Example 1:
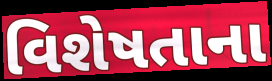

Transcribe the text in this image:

વિશેષતાના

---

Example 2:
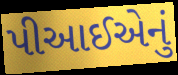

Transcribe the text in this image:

પીઆઈએનું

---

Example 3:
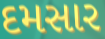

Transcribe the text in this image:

દમસાર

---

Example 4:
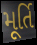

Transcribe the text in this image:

મૂર્તિ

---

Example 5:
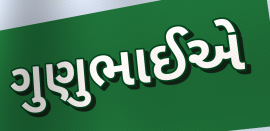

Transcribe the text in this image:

ગુણુભાઈએ